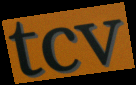
tcv